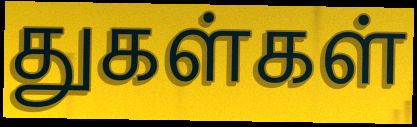
துகள்கள்